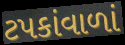
ટપકાંવાળાં